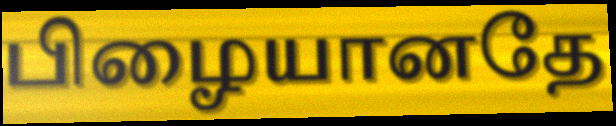
பிழையானதே